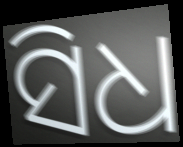
ସିଧ